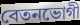
বেতনভোগী